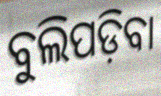
ବୁଲିପଡ଼ିବା